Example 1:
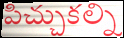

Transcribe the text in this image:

పిచ్చుకల్ని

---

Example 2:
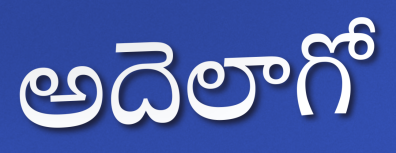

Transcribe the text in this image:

అదెలాగో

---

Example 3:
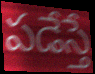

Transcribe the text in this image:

పడేస్తే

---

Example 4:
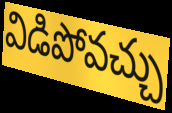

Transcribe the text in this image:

విడిపోవచ్చు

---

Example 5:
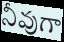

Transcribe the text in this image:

నీవుగా